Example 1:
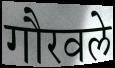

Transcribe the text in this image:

गौरवले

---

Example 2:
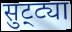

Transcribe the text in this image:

सुट्ट्या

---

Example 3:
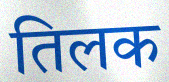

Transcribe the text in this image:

तिलक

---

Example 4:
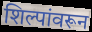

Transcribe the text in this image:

शिल्पांवरून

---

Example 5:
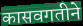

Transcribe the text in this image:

कासवगतीने